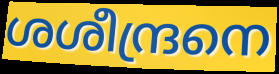
ശശീന്ദ്രനെ